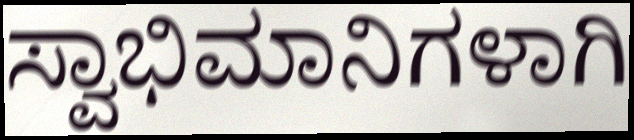
ಸ್ವಾಭಿಮಾನಿಗಳಾಗಿ